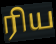
ரிய